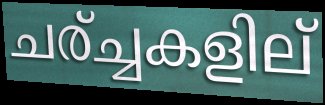
ചര്ച്ചകളില്